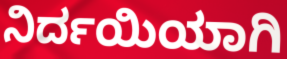
ನಿರ್ದಯಿಯಾಗಿ